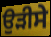
ਉੜੀਸੇ